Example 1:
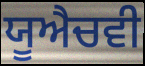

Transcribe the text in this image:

ਯੂਐਚਵੀ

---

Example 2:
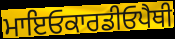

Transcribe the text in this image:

ਮਾਇਓਕਾਰਡੀਓਪੈਥੀ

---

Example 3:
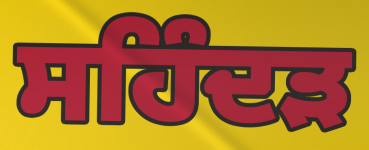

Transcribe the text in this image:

ਸਹਿੰਦੜ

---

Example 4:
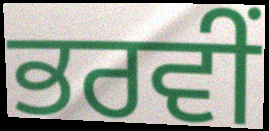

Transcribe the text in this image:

ਭਰਵੀਂ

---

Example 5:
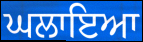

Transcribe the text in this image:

ਘਲਾਇਆ